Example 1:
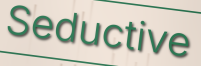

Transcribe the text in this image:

Seductive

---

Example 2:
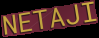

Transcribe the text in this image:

NETAJI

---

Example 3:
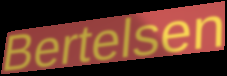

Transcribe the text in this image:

Bertelsen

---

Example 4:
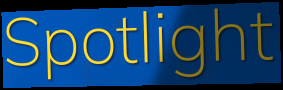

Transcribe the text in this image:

Spotlight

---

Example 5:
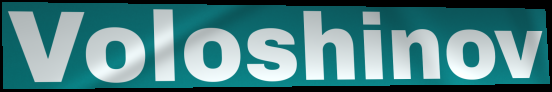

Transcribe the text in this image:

Voloshinov